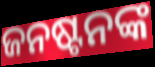
ଜନଷ୍ଟନଙ୍କ